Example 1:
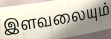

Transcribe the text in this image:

இளவலையும்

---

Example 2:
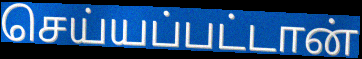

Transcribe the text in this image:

செய்யப்பட்டான்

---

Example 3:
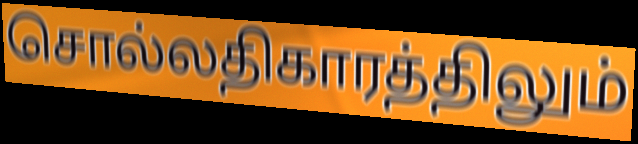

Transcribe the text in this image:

சொல்லதிகாரத்திலும்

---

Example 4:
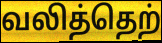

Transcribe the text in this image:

வலித்தெற்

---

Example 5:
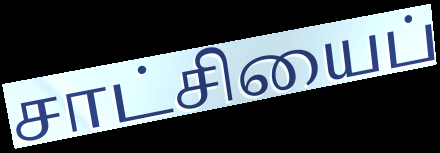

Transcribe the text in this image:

சாட்சியைப்